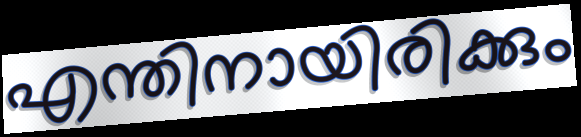
എന്തിനായിരിക്കും